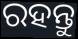
ରହନ୍ତୁ